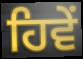
ਹਿਵੇਂ